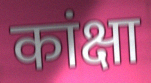
कांक्षा